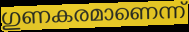
ഗുണകരമാണെന്ന്